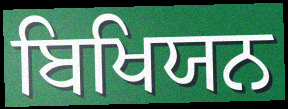
ਬਿਖਿਯਨ